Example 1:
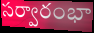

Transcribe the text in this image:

సర్వారంభా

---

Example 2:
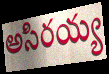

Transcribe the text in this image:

అసిరయ్య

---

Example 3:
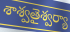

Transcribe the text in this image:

శాశ్వతైశ్వర్యా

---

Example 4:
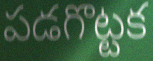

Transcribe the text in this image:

పడగొట్టక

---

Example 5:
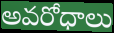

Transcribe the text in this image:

అవరోధాలు